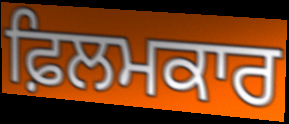
ਫ਼ਿਲਮਕਾਰ